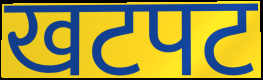
खटपट